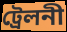
ট্রেলনী